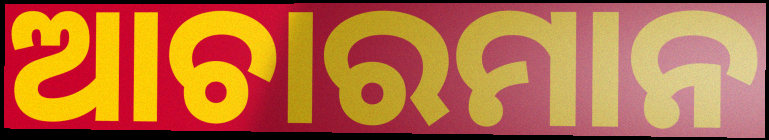
ଆଚାରମାନ